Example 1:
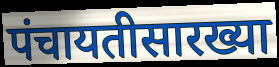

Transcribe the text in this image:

पंचायतीसारख्या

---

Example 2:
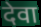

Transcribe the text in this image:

देवा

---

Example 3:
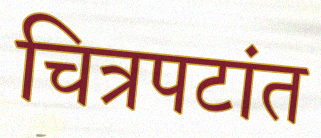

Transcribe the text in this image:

चित्रपटांत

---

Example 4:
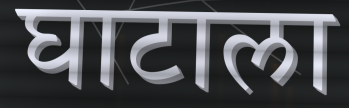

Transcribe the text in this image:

घाटाला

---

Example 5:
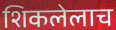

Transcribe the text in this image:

शिकलेलाच